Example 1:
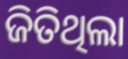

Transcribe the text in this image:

ଜିତିଥିଲା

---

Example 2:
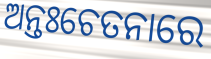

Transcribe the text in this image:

ଅନ୍ତଃଚେତନାରେ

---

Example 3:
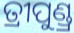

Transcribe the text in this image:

ତ୍ରୀପୁଣ୍ଡ୍ର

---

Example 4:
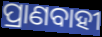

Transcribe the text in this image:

ପ୍ରାଣବାହୀ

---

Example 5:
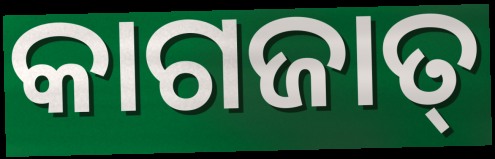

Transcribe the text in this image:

କାଗଜାତ୍